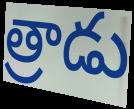
త్రాడు